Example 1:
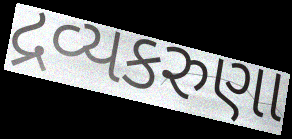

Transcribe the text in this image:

દ્રવ્યકરુણા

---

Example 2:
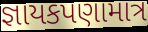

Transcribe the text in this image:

જ્ઞાયકપણામાત્ર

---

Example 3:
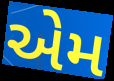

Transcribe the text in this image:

એેમ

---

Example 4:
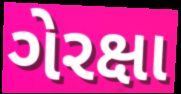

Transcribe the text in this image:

ગેરક્ષા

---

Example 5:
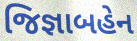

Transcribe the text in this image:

જિજ્ઞાબહેન